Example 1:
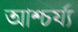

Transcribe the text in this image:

আশ্চৰ্য্য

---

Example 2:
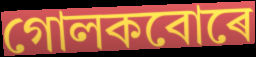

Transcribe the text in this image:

গোলকবোৰে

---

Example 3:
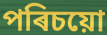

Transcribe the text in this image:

পৰিচয়ো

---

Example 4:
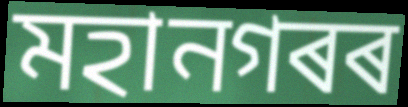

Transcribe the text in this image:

মহানগৰৰ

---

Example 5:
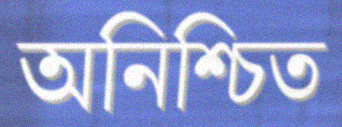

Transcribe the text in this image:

অনিশ্চিত